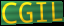
CGIL